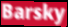
Barsky